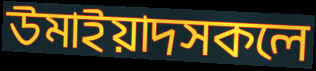
উমাইয়াদসকলে